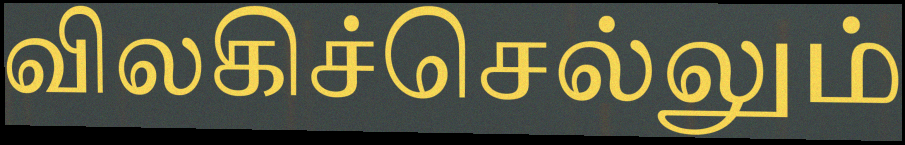
விலகிச்செல்லும்